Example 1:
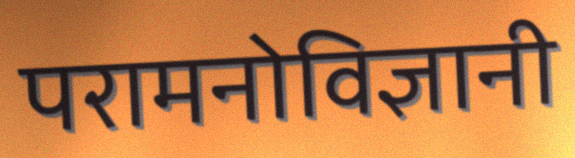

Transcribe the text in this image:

परामनोविज्ञानी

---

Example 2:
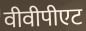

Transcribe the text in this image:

वीवीपीएट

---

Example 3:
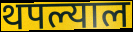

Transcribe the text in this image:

थपल्याल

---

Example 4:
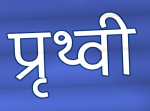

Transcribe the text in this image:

प्रृथ्वी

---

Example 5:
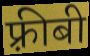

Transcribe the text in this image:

फ़्रीबी